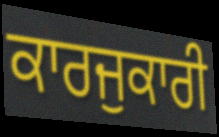
ਕਾਰਜੁਕਾਰੀ